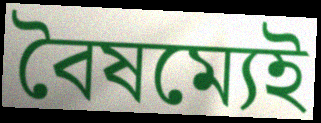
বৈষম্যেই